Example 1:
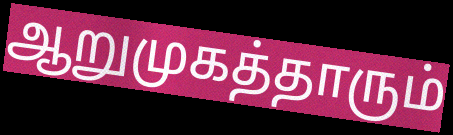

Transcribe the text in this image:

ஆறுமுகத்தாரும்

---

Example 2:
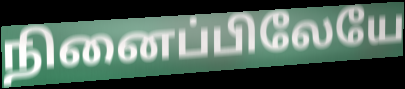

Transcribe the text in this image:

நினைப்பிலேயே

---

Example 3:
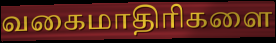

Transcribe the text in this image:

வகைமாதிரிகளை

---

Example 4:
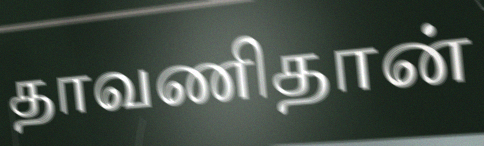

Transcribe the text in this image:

தாவணிதான்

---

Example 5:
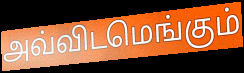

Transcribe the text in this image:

அவ்விடமெங்கும்